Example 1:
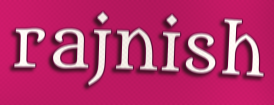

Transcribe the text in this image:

rajnish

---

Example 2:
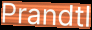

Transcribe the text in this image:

Prandtl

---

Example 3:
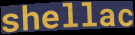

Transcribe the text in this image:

shellac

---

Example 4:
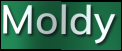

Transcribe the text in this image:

Moldy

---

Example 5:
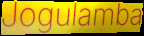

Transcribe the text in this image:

Jogulamba